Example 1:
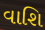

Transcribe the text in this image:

વાશિ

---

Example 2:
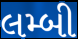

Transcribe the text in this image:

લમ્બી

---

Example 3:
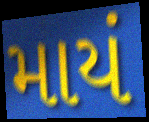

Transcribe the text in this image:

માયં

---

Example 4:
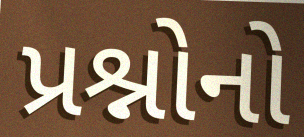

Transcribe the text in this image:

પ્રશ્નોનો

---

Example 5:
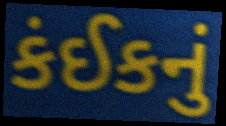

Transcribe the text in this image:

કંઈકનું